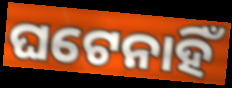
ଘଟେନାହିଁ